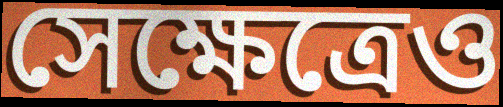
সেক্ষেত্রেও